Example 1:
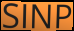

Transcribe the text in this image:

SINP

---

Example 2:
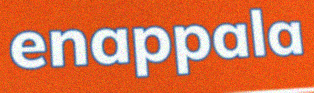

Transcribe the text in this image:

enappala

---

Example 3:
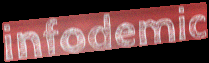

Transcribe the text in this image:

infodemic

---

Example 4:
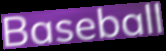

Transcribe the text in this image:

Baseball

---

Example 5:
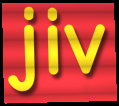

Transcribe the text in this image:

jiv